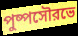
পুষ্পসৌরভে